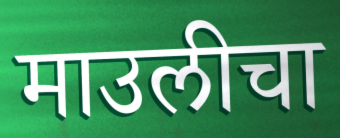
माउलीचा